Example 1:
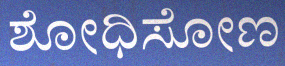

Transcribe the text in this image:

ಶೋಧಿಸೋಣ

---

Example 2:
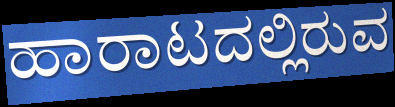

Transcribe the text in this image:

ಹಾರಾಟದಲ್ಲಿರುವ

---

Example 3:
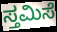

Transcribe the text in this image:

ಸ್ತಮಿಸೆ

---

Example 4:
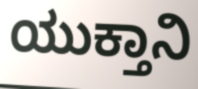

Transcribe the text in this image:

ಯುಕ್ತಾನಿ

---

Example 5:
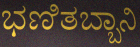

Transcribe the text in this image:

ಭಣಿತಬ್ಬಾನಿ